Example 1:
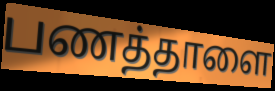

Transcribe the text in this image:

பணத்தாளை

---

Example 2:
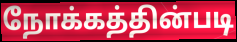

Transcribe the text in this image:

நோக்கத்தின்படி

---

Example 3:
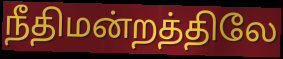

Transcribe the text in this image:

நீதிமன்றத்திலே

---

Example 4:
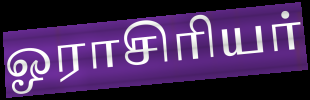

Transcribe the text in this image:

ஓராசிரியர்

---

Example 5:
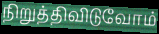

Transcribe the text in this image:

நிறுத்திவிடுவோம்